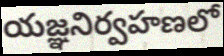
యజ్ఞనిర్వహణలో